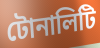
টোনালিটি